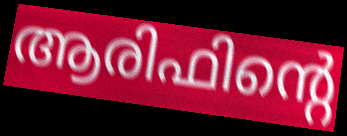
ആരിഫിന്റെ